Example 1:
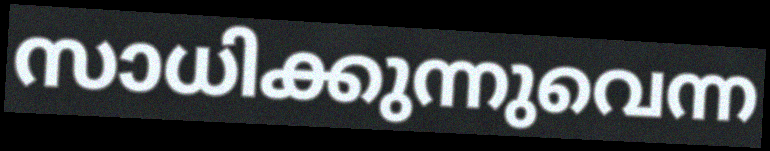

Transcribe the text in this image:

സാധിക്കുന്നുവെന്ന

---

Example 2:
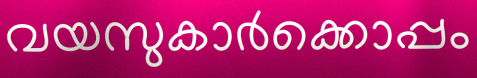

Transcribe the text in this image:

വയസുകാർക്കൊപ്പം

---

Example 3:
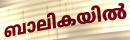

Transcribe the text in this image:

ബാലികയിൽ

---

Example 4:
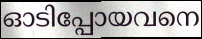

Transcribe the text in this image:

ഓടിപ്പോയവനെ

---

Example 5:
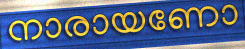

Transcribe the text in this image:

നാരായണോ